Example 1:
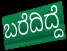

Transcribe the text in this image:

ಬರೆದಿದ್ದೆ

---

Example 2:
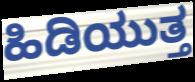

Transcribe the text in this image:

ಹಿಡಿಯುತ್ತ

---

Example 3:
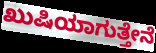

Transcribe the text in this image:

ಖುಷಿಯಾಗುತ್ತೇನೆ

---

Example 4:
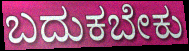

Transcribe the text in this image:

ಬದುಕಬೇಕು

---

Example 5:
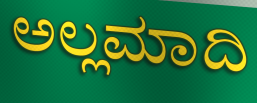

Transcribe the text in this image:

ಅಲ್ಲಮಾದಿ